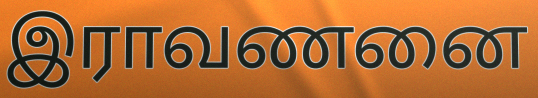
இராவணனை